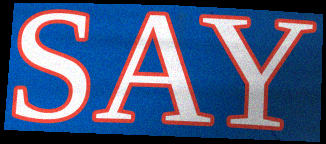
SAY